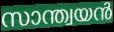
സാന്ത്വയൻ